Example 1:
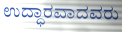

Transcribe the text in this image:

ಉದ್ಧಾರವಾದವರು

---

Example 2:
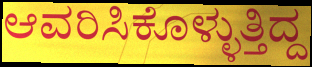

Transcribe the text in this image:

ಆವರಿಸಿಕೊಳ್ಳುತ್ತಿದ್ದ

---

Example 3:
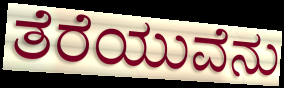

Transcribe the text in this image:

ತೆರೆಯುವೆನು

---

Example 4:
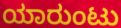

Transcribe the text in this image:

ಯಾರುಂಟು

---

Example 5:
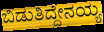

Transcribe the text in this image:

ಬಿಡುತಿದ್ದೇನಯ್ಯ